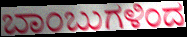
ಬಾಂಬುಗಳಿಂದ